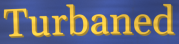
Turbaned